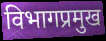
विभागप्रमुख